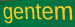
gentem